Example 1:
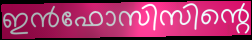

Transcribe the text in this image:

ഇൻഫോസിസിന്റെ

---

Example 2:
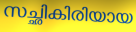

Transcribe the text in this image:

സച്ഛികിരിയായ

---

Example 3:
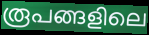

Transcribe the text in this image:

രൂപങ്ങളിലെ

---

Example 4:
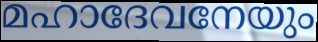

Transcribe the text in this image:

മഹാദേവനേയും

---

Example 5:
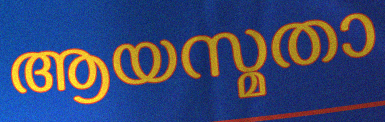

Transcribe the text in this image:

ആയസ്മതാ